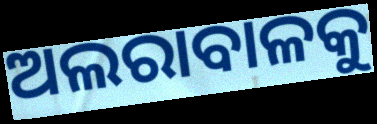
ଅଲରାବାଳକୁ